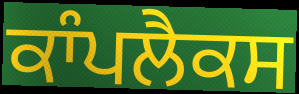
ਕਾੰਪਲੈਕਸ